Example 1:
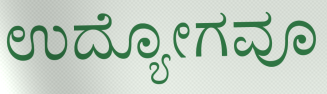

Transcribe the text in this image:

ಉದ್ಯೋಗವೂ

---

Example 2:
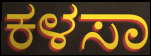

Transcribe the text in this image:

ಕಳಸಾ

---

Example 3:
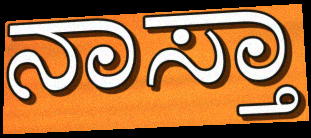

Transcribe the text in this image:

ನಾಸ್ತಾ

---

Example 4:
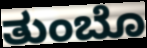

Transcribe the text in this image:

ತುಂಬೊ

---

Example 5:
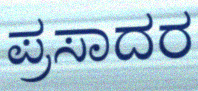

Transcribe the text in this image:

ಪ್ರಸಾದರ